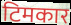
टिमकार